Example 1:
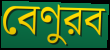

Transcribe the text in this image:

বেণুরব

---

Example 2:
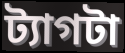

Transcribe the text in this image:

ট্যাগটা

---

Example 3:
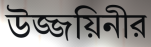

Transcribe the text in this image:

উজ্জয়িনীর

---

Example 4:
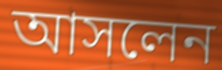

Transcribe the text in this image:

আসলেন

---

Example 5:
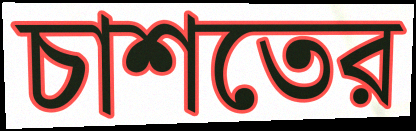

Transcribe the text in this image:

চাশতের